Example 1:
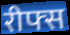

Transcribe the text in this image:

रीफ्स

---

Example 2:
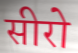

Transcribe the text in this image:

सीरो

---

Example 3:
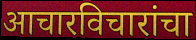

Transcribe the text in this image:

आचारविचारांचा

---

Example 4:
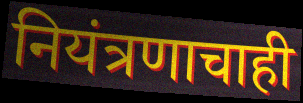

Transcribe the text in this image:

नियंत्रणाचाही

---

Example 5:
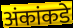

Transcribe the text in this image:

अंकांकडे